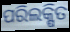
ପରିଲକ୍ଷିତ